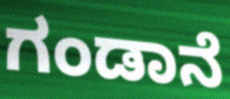
ಗಂಡಾನೆ